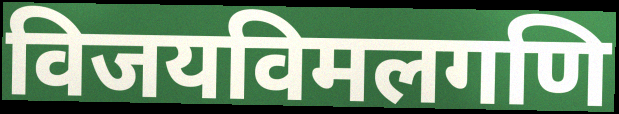
विजयविमलगणि